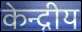
केन्द्रीय